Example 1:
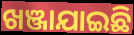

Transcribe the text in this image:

ଖଞ୍ଜାଯାଇଛି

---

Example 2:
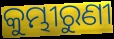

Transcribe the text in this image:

କୁମ୍ଭୀରୁଣୀ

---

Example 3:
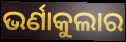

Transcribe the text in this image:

ଭର୍ଣାକୁଲାର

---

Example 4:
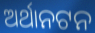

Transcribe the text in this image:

ଅର୍ଥାନଟନ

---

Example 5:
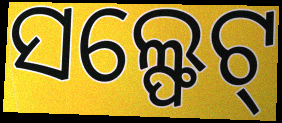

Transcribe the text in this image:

ସଲ୍ଫେଟ୍